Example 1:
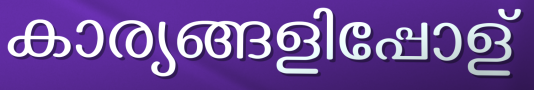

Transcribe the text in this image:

കാര്യങ്ങളിപ്പോള്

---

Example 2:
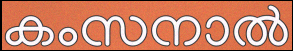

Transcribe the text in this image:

കംസനാൽ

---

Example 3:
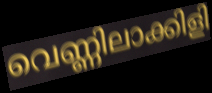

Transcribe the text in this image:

വെണ്ണിലാക്കിളി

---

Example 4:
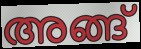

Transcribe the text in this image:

അങ്ങ്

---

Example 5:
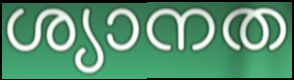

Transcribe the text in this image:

ശ്യാനത